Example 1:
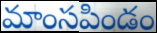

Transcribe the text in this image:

మాంసపిండం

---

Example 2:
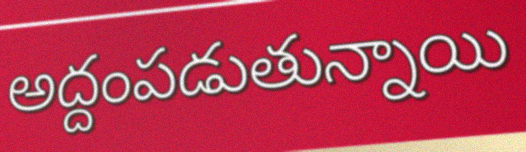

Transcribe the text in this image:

అద్దంపడుతున్నాయి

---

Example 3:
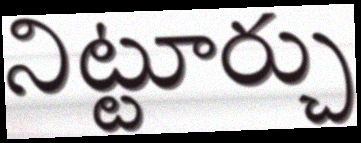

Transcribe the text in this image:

నిట్టూర్చు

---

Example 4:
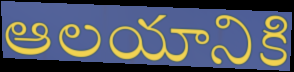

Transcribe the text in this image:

ఆలయానికి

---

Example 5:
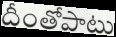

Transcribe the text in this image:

దీంతోపాటు